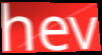
hev